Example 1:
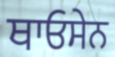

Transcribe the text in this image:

ਥਾਓਸੇਨ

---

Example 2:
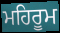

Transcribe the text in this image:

ਮਹਿਰੂਮ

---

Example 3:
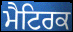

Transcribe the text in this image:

ਮੈਟਿਰਕ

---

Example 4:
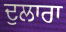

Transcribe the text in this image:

ਦੁਲਾਰਾ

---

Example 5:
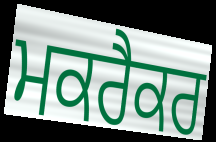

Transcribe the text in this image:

ਮਕਰੈਕਰ